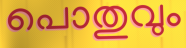
പൊതുവും